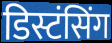
डिस्टंसिंग